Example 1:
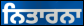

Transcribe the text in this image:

ਨਿਤਾਰਨਾ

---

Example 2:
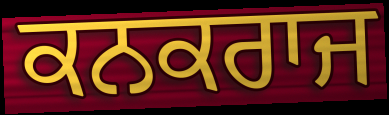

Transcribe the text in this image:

ਕਨਕਰਾਜ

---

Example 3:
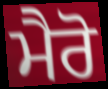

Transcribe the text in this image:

ਮੈਰੋ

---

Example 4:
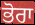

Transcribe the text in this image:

ਭੋਰਾ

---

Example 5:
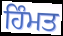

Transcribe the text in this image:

ਹਿੰਮਤ